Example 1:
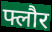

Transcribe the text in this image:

फ्लौर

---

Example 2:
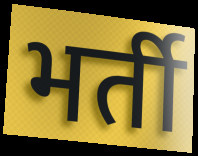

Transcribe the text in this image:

भर्ती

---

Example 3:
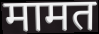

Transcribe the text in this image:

मामत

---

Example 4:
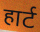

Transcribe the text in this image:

हार्ट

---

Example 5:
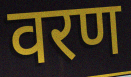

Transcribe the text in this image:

वरण